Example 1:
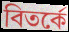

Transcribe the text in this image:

বিতর্কে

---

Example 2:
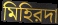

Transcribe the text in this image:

মিহিরদা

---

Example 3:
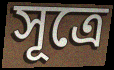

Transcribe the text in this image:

সূত্রে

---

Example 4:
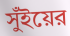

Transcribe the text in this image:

সুঁইয়ের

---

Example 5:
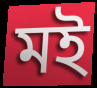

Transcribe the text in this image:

মই